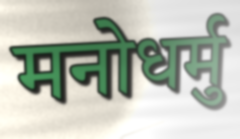
मनोधर्मु